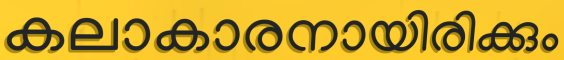
കലാകാരനായിരിക്കും